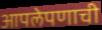
आपलेपणाची